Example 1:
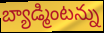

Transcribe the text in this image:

బ్యాడ్మింటన్ను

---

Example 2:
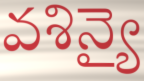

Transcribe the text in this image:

వశిన్యై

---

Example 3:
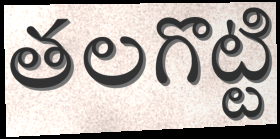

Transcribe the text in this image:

తలగొట్టి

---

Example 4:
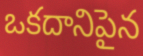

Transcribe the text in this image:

ఒకదానిపైన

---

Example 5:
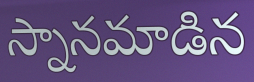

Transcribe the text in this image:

స్నానమాడిన